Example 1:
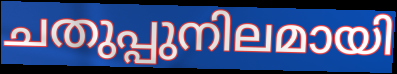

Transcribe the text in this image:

ചതുപ്പുനിലമായി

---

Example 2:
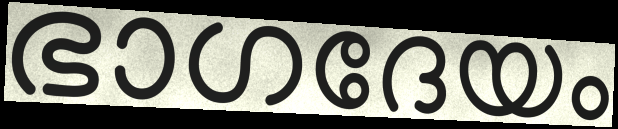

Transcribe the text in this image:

ഭാഗദേയം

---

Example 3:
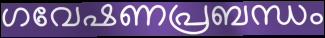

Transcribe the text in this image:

ഗവേഷണപ്രബന്ധം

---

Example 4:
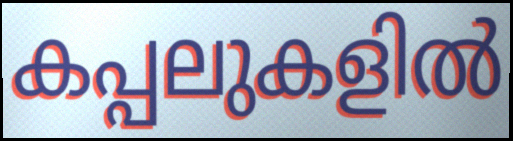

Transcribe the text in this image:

കപ്പലുകളിൽ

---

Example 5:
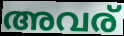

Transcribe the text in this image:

അവര്